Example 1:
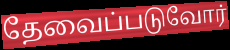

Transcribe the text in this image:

தேவைப்படுவோர்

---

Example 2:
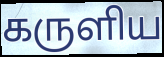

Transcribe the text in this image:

கருளிய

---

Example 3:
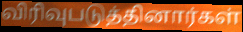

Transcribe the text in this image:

விரிவுபடுத்தினார்கள்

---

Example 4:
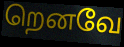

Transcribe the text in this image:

றெனவே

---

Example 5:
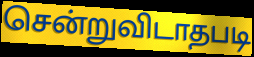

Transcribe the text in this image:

சென்றுவிடாதபடி